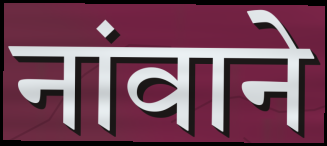
नांवाने